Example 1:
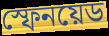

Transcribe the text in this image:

স্ফেনয়েড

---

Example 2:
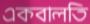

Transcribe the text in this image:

একবালতি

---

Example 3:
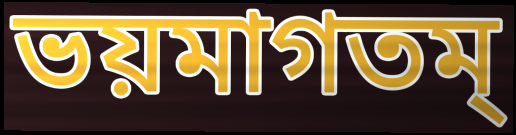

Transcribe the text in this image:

ভয়মাগতম্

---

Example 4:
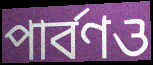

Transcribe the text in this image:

পার্বণও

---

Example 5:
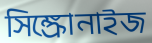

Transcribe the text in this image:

সিঙ্ক্রোনাইজ